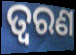
ତ୍ୱରଣ